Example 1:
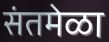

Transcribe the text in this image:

संतमेळा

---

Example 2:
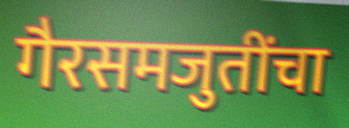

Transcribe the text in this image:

गैरसमजुतींचा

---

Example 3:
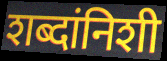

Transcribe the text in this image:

शब्दांनिशी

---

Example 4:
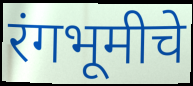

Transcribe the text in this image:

रंगभूमीचे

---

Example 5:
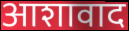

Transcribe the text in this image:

आशावाद